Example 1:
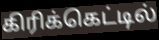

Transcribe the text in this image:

கிரிக்கெட்டில்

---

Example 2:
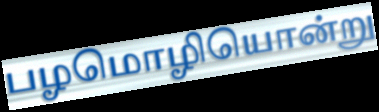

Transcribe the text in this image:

பழமொழியொன்று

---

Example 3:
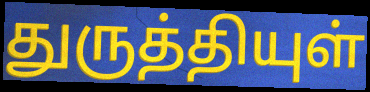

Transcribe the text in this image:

துருத்தியுள்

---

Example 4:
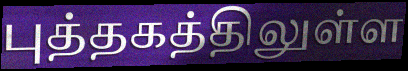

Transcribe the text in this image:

புத்தகத்திலுள்ள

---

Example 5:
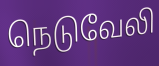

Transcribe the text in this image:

நெடுவேலி